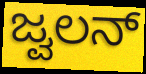
ಜ್ವಲನ್